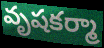
వృషకర్మా